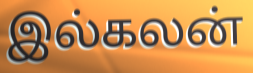
இல்கலன்